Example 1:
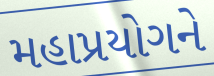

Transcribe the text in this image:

મહાપ્રયોગને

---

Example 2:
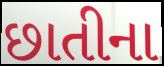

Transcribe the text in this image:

છાતીના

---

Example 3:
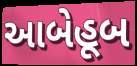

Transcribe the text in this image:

આબેહૂબ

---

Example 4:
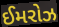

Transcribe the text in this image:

ઈમરોઝ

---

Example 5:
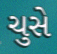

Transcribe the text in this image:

ચુસે